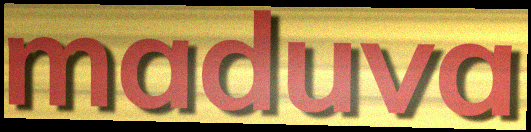
maduva